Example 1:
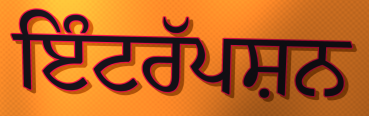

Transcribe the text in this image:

ਇੰਟਰੱਪਸ਼ਨ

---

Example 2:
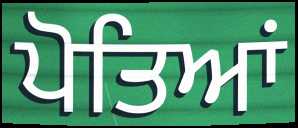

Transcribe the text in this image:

ਪੋਤਿਆਂ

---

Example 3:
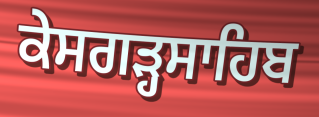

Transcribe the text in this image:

ਕੇਸਗੜ੍ਹਸਾਹਿਬ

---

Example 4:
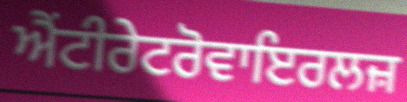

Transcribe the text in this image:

ਐਂਟੀਰੇਟਰੋਵਾਇਰਲਜ਼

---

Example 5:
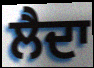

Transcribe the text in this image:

ਲੈਦਾ